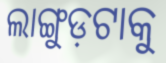
ଲାଙ୍ଗୁଡ଼ଟାକୁ